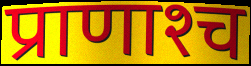
प्राणाश्च